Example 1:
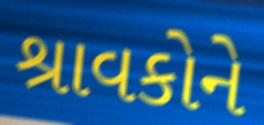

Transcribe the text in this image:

શ્રાવકોને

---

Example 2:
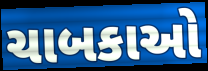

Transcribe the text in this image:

ચાબકાઓ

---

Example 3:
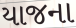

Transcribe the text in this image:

યાજના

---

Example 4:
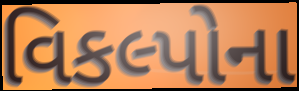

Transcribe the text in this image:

વિકલ્પોના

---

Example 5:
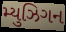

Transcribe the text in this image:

મ્યુઝિગન